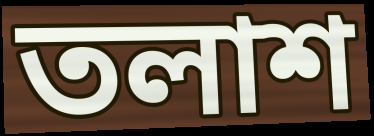
তলাশ